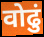
वोढुं